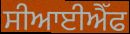
ਸੀਆਈਐੱਫ